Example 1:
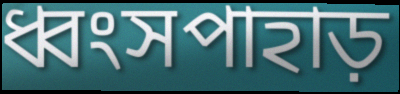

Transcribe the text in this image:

ধ্বংসপাহাড়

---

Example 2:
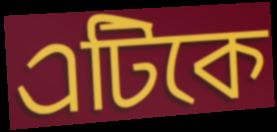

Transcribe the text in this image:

এটিকে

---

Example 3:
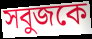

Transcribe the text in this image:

সবুজকে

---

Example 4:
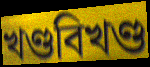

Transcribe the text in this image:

খণ্ডবিখণ্ড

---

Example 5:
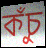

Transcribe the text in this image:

কঁচু